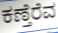
ಕಣ್ತೆರೆವ